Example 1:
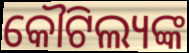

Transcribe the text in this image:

କୌଟିଲ୍ୟଙ୍କ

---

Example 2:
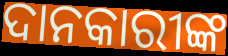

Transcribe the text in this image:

ଦାନକାରୀଙ୍କ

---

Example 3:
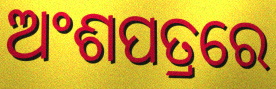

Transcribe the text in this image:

ଅଂଶପତ୍ରରେ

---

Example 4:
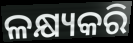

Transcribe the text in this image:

ଳକ୍ଷ୍ୟକରି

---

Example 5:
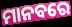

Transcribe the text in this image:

ମାନବରେ